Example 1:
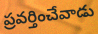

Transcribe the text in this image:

ప్రవర్తించేవాడు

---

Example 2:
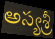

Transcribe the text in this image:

అస్యశ్రీ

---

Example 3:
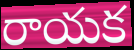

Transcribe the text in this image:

రాయక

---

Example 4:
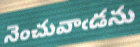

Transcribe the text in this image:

నెంచువాఁడను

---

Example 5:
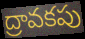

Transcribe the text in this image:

ద్రావకపు